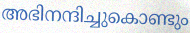
അഭിനന്ദിച്ചുകൊണ്ടും